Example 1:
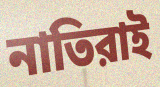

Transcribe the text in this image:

নাতিরাই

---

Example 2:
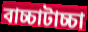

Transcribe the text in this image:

বাচ্চাটাচ্চা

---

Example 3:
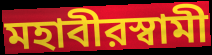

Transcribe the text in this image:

মহাবীরস্বামী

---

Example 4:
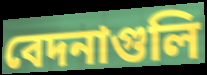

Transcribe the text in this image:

বেদনাগুলি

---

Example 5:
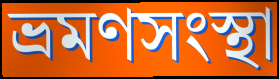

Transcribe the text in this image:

ভ্রমণসংস্থা